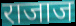
राजाज